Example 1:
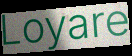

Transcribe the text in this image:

Loyare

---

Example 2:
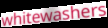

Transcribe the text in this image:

whitewashers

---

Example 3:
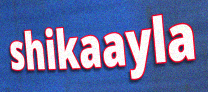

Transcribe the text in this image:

shikaayla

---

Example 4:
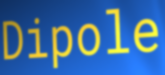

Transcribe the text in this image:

Dipole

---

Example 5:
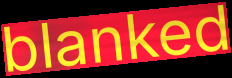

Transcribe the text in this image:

blanked